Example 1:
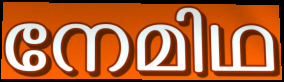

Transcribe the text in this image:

നേമിഥ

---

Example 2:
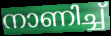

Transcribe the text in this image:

നാണിച്ച്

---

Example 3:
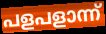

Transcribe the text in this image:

പളപളാന്ന്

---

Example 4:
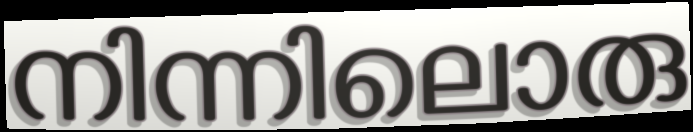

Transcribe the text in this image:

നിന്നിലൊരു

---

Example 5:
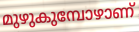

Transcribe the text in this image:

മുഴുകുമ്പോഴാണ്